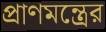
প্রাণমন্ত্রের